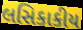
લસિકાકીય